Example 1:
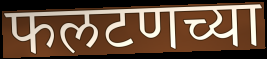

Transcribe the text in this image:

फलटणच्या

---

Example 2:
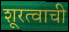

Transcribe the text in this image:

शूरत्वाची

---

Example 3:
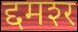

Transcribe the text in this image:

द्दमश्र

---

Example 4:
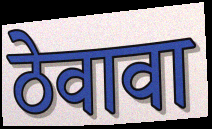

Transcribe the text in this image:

ठेवावा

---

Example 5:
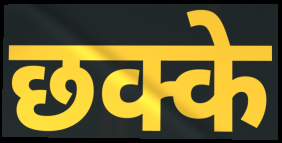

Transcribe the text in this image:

छक्के